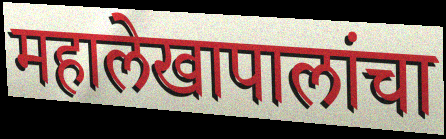
महालेखापालांचा